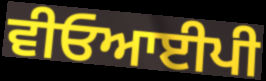
ਵੀਓਆਈਪੀ